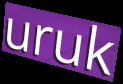
uruk